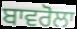
ਬਾਵਰੋਲਾ